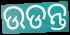
ଉଡନ୍ତ